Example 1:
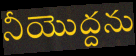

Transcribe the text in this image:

నీయొద్దను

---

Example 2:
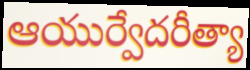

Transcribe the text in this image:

ఆయుర్వేదరీత్యా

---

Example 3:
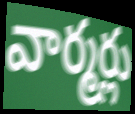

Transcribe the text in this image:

వార్మర్లు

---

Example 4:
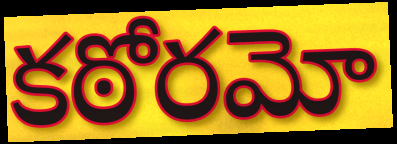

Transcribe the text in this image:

కఠోరమో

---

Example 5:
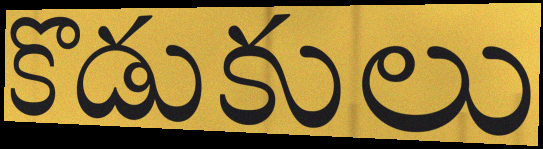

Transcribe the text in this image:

కొడుకులు